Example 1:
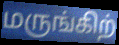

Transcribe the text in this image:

மருங்கிற்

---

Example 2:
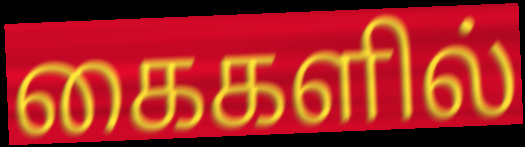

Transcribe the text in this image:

கைகளில்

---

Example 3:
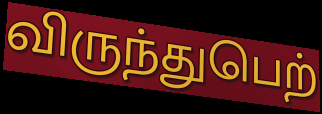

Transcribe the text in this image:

விருந்துபெற்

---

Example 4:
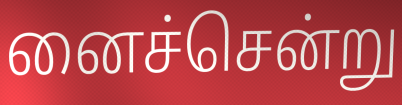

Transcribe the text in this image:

னைச்சென்று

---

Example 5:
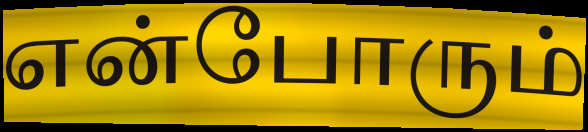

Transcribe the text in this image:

என்போரும்